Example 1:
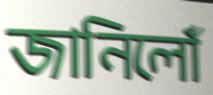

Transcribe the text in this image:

জানিলোঁ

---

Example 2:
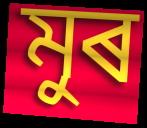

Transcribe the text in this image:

মুৰ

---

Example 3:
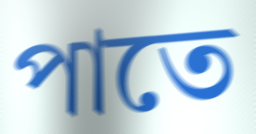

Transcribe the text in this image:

পাতে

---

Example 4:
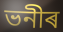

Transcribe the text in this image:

ভনীৰ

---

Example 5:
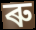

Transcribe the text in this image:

ৰু